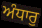
ਅੰਧਾਰੁ